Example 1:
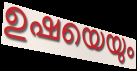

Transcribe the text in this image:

ഉഷയെയും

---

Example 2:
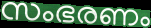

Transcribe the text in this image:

സംഭരണം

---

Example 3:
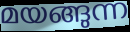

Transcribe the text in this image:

മയങ്ങുന്ന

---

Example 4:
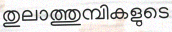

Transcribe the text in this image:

തുലാത്തുമ്പികളുടെ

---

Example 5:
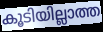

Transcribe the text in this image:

കൂടിയില്ലാത്ത